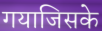
गयाजिसके